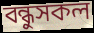
বন্ধুসকল